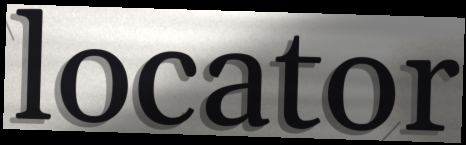
locator